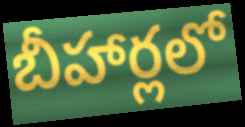
బీహార్లలో